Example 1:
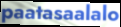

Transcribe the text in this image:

paatasaalalo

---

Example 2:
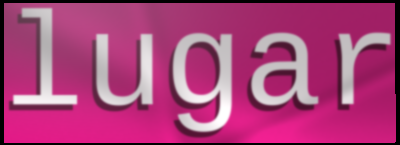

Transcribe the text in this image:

lugar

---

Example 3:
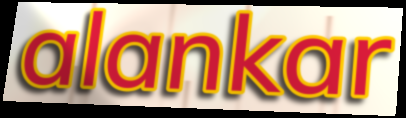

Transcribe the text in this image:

alankar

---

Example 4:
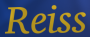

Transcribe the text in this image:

Reiss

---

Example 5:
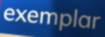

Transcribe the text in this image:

exemplar